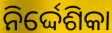
ନିର୍ଦ୍ଦେଶିକା